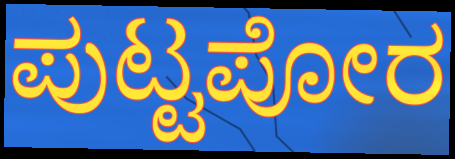
ಪುಟ್ಟಪೋರ